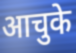
आचुके